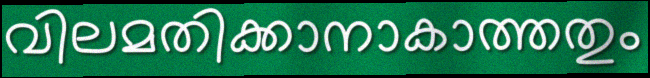
വിലമതിക്കാനാകാത്തതും